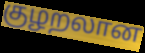
குழறலான